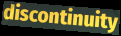
discontinuity